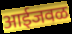
आईजवळ